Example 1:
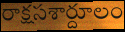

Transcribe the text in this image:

రాక్షసశార్దూలం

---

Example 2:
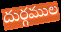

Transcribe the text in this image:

దుర్గముల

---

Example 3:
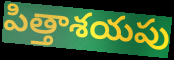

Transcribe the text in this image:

పిత్తాశయపు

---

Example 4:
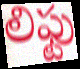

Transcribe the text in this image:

లిఫ్టు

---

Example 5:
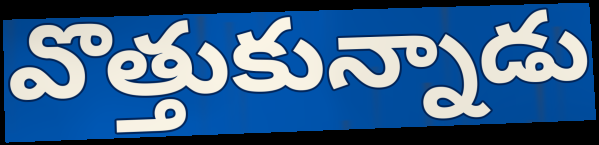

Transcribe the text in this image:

వొత్తుకున్నాడు